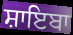
ਸ਼ਾਇਬਾ